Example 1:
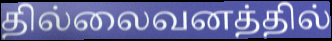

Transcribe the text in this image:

தில்லைவனத்தில்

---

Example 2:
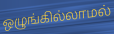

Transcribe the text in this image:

ஒழுங்கில்லாமல்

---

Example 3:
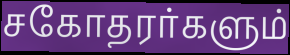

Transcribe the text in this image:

சகோதரர்களும்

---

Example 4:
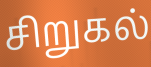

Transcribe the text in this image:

சிறுகல்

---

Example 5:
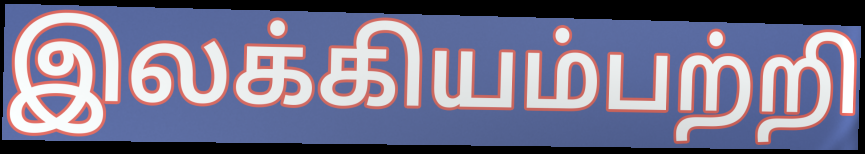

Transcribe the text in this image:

இலக்கியம்பற்றி